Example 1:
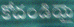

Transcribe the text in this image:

కోదండియై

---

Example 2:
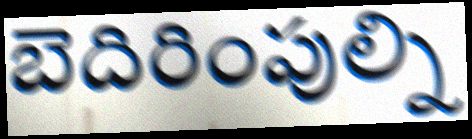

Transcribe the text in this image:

బెదిరింపుల్ని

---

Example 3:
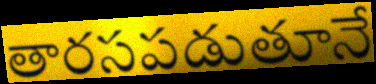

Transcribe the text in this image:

తారసపడుతూనే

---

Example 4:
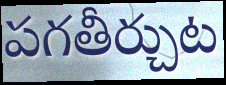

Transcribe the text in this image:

పగతీర్చుట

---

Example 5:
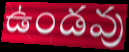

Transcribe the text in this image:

ఉండవు